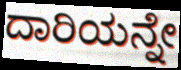
ದಾರಿಯನ್ನೇ